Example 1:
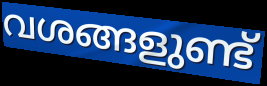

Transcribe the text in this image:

വശങ്ങളുണ്ട്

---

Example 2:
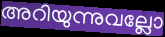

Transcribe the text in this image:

അറിയുന്നുവല്ലോ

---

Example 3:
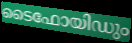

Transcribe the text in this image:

ടൈഫോയിഡും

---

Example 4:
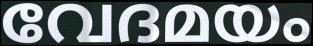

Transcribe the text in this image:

വേദമയം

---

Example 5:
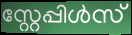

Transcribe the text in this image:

സ്റ്റേപ്പിൾസ്